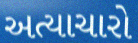
અત્યાચારો